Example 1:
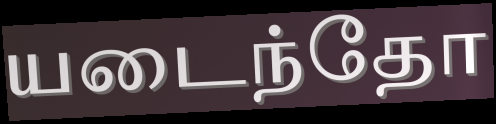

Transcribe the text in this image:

யடைந்தோ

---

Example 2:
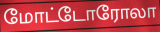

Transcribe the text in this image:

மோட்டோரோலா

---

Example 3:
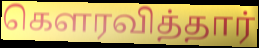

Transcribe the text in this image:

கௌரவித்தார்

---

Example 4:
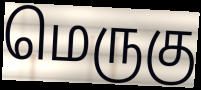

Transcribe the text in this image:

மெருகு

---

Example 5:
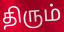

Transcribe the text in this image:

திரும்